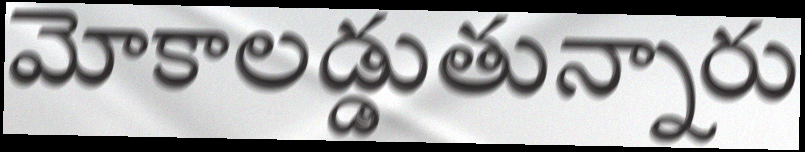
మోకాలడ్డుతున్నారు